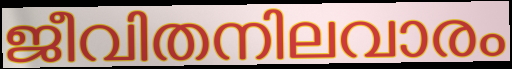
ജീവിതനിലവാരം